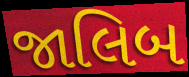
જાલિબ